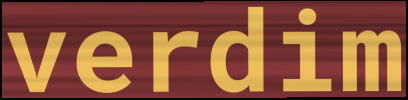
verdim